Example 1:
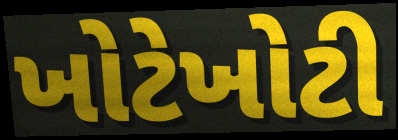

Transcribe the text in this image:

ખોટેખોટી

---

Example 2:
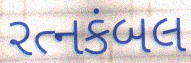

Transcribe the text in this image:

રત્નકંબલ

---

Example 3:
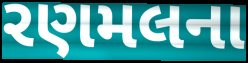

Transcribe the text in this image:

રણમલના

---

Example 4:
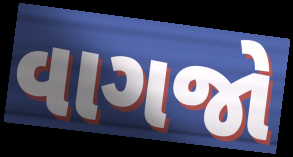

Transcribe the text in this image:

વાગજો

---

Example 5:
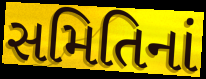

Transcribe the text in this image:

સમિતિનાં